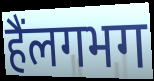
हैंलगभग